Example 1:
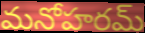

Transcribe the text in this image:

మనోహరమ్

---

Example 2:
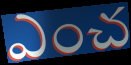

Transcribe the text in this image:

ఎంచ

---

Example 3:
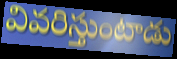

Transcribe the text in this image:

వివరిస్తుంటాడు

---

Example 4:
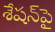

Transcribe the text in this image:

శేషన్‌పై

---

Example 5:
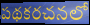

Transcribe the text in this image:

పథకరచనలో